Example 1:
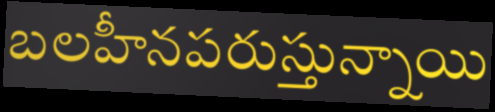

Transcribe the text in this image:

బలహీనపరుస్తున్నాయి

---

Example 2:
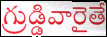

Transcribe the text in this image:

గ్రుడ్డివారైతే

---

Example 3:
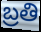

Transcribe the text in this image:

బ్రతి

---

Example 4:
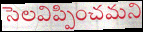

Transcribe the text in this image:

సెలవిప్పించమని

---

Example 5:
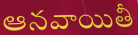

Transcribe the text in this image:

ఆనవాయితీ